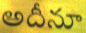
అదీనూ